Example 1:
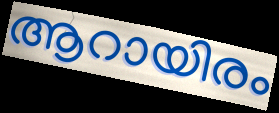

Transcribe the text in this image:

ആറായിരം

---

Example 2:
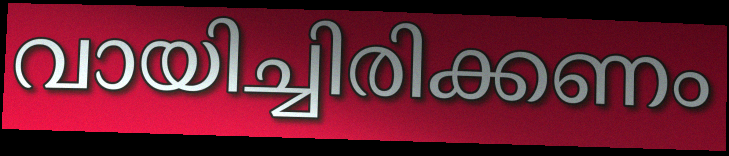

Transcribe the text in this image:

വായിച്ചിരിക്കണം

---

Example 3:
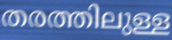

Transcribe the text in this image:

തരത്തിലുള്ള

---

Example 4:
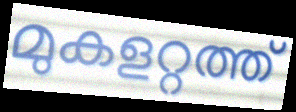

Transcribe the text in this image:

മുകളറ്റത്ത്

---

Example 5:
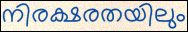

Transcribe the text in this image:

നിരക്ഷരതയിലും